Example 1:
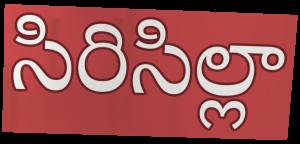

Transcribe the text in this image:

సిరిసిల్లా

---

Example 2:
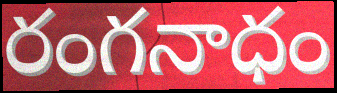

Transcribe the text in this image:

రంగనాధం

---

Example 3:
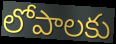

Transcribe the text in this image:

లోపాలకు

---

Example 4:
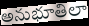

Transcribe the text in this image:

అనుభూతిలా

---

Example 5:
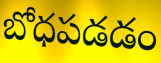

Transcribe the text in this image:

బోధపడడం